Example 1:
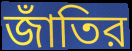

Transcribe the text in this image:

জাঁতির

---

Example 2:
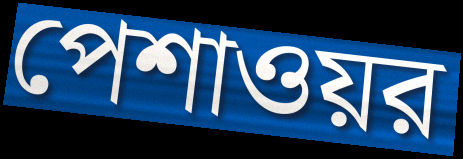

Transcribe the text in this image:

পেশাওয়র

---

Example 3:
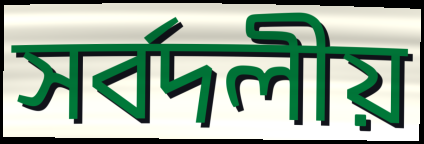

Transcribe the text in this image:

সর্বদলীয়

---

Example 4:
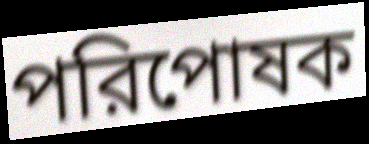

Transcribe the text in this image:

পরিপোষক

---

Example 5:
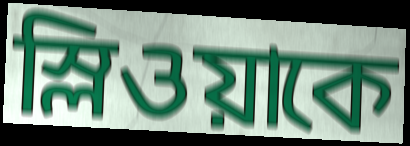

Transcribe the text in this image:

স্লিওয়াকে